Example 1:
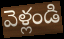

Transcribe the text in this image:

వెళ్లండి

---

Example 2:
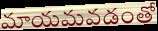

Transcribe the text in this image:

మాయమవడంతో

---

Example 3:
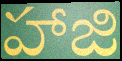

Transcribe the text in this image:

హాజి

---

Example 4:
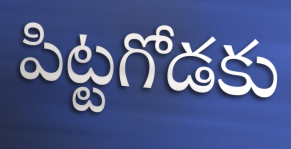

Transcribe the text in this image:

పిట్టగోడకు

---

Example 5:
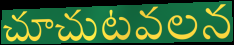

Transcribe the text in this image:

చూచుటవలన